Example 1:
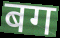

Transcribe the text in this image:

बग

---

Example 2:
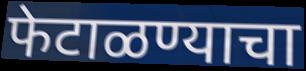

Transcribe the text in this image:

फेटाळण्याचा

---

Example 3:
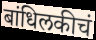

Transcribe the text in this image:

बांधिलकीचं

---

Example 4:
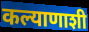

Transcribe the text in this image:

कल्याणाशी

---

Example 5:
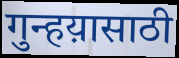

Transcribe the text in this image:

गुन्हय़ासाठी